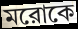
মরোকে